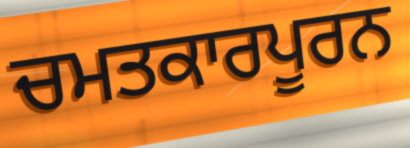
ਚਮਤਕਾਰਪੂਰਨ